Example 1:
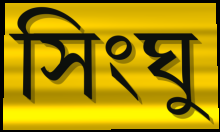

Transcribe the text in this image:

সিংঘু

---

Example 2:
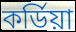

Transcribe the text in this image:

কর্ডিয়া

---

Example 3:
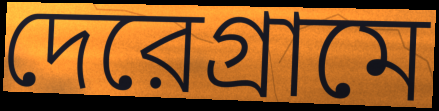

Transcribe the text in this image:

দেরেগ্রামে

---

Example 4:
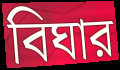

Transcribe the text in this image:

বিঘার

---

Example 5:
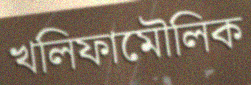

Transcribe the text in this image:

খলিফামৌলিক